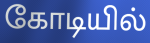
கோடியில்